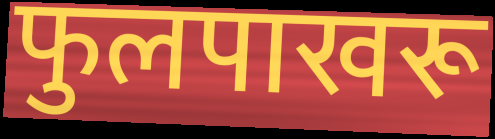
फुलपाखरू